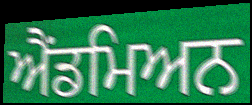
ਐਂਡਮਿਅਨ